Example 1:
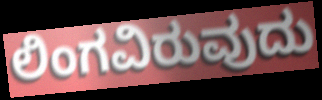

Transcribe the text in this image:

ಲಿಂಗವಿರುವುದು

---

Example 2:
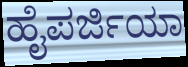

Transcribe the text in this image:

ಹೈಪರ್ಜಿಯಾ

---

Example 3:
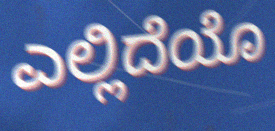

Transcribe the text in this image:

ಎಲ್ಲಿದೆಯೊ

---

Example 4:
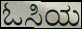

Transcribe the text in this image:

ಓಸಿಯ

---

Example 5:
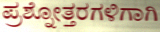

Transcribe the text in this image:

ಪ್ರಶ್ನೋತ್ತರಗಳಿಗಾಗಿ